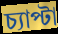
চ্যাপ্টা